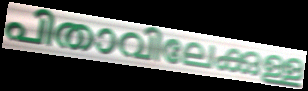
പിതാവിലേക്കുള്ള